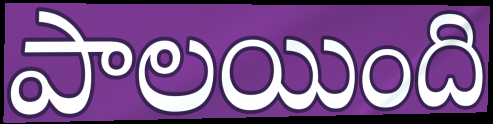
పాలయింది